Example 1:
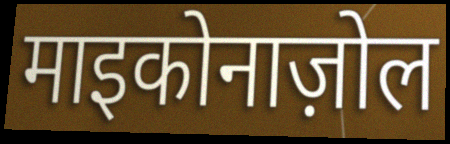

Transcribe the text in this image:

माइकोनाज़ोल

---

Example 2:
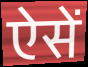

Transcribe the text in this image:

ऐसें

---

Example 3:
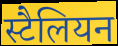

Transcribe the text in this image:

स्टैलियन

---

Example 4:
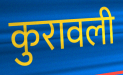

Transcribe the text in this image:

कुरावली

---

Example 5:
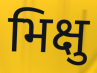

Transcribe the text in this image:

भिक्षु